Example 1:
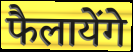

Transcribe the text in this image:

फैलायेंगे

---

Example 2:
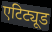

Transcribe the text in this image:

एटिट्यूड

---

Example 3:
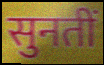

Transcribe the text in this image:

सुनतीं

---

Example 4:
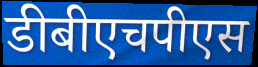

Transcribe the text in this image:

डीबीएचपीएस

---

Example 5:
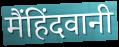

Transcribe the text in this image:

मैंहिंदवानी